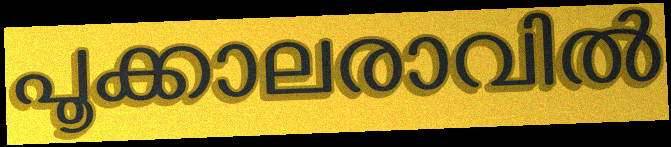
പൂക്കാലരാവിൽ